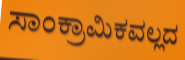
ಸಾಂಕ್ರಾಮಿಕವಲ್ಲದ